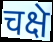
चक्षे